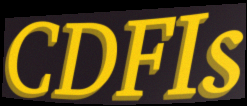
CDFIs